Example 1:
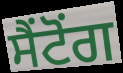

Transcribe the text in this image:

ਸੈਂਟੋਂਗ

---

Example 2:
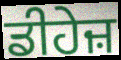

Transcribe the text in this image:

ਡੀਹੇਜ਼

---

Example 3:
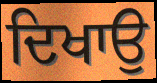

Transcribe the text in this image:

ਦਿਖਾਉ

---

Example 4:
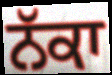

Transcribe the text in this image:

ਨੱਕਾ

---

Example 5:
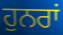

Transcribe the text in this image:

ਹੁਨਰਾਂ